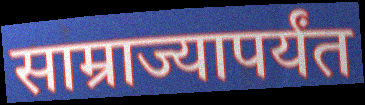
साम्राज्यापर्यंत